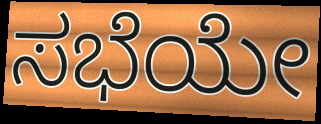
ಸಭೆಯೇ